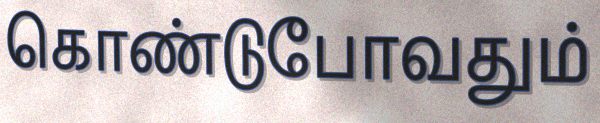
கொண்டுபோவதும்